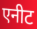
एनीट